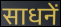
साधनें